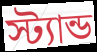
স্ট্যান্ড